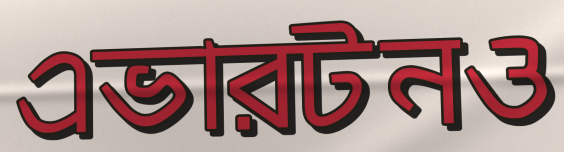
এভারটনও